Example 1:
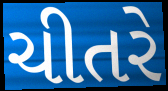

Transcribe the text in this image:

ચીતરે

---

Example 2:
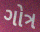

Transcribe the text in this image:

ગોત્ર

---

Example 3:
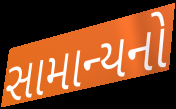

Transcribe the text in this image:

સામાન્યનો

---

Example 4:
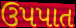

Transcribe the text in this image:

ઉપપાત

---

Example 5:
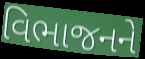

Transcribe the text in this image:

વિભાજનને